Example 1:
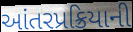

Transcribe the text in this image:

આંતરપ્રક્રિયાની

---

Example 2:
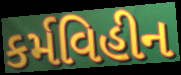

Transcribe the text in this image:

કર્મવિહીન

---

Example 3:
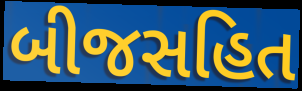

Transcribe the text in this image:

બીજસહિત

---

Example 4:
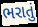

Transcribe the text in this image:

ભરાતું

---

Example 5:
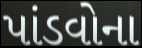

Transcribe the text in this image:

પાંડવોના